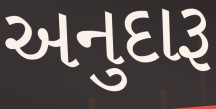
અનુદારૂ